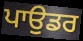
ਪਾਉਡਰ